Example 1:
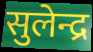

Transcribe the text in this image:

सुलेन्द्र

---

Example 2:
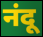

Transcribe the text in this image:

नंदू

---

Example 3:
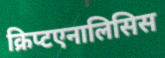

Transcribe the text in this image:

क्रिप्टएनालिसिस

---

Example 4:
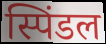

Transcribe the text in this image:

स्पिंडल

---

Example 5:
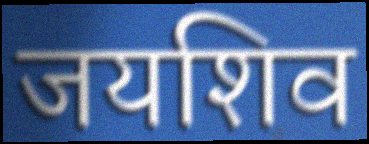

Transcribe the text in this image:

जयशिव